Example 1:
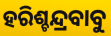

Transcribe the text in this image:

ହରିଶ୍ଚନ୍ଦ୍ରବାବୁ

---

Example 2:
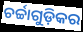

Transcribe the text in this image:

ଚର୍ଚ୍ଚାଗୁଡ଼ିକର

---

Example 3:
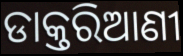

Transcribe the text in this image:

ଡାକ୍ତରିଆଣୀ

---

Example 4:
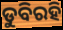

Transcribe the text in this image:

ଡୁବିରହି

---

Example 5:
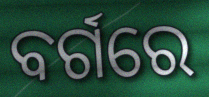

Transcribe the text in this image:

ବର୍ଗରେ